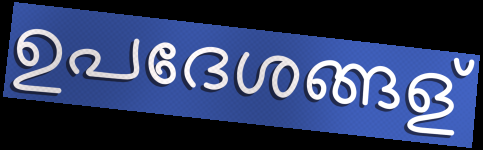
ഉപദേശങ്ങള്